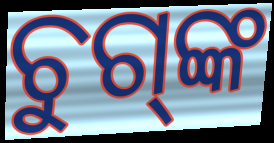
ଚୁଗ୍‌ଙ୍କ